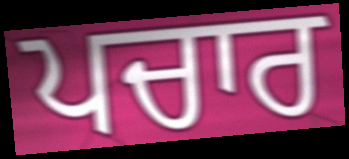
ਪਚਾਰ